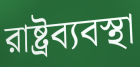
রাষ্ট্রব্যবস্থা